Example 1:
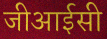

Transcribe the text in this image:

जीआईसी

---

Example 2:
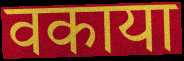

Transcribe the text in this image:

वकाया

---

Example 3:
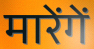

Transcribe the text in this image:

मारेंगें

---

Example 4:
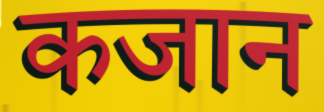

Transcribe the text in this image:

कजान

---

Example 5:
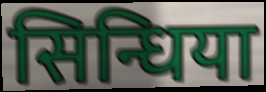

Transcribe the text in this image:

सिन्धिया